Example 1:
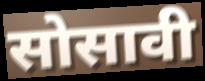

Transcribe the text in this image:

सोसावी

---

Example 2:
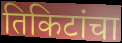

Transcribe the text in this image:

तिकिटांचा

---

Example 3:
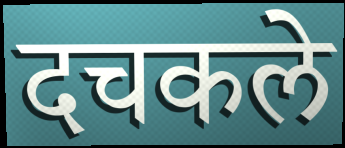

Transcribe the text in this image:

दचकले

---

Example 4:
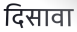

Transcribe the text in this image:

दिसावा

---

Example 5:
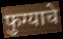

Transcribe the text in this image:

फुग्याचे